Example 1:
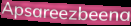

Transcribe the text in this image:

Apsareezbeena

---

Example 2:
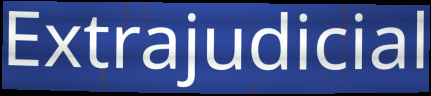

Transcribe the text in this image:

Extrajudicial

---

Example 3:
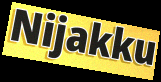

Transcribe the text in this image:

Nijakku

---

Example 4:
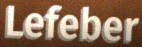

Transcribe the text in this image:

Lefeber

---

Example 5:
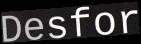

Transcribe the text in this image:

Desfor